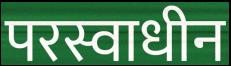
परस्वाधीन